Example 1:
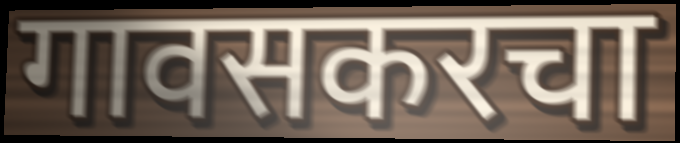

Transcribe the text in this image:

गावसकरचा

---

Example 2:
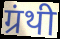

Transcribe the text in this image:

ग्रंथी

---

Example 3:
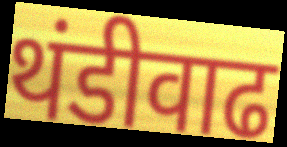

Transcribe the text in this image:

थंडीवाढ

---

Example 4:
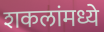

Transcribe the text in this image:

शकलांमध्ये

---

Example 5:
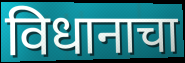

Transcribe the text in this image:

विधानाचा